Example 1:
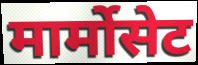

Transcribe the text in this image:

मार्मोसेट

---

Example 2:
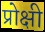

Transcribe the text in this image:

प्रोक्षी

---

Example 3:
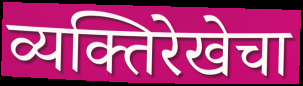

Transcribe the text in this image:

व्यक्तिरेखेचा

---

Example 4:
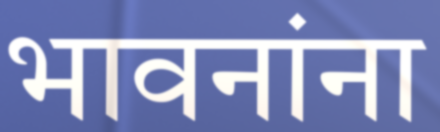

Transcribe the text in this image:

भावनांना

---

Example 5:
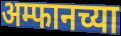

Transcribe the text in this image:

अम्फानच्या